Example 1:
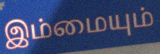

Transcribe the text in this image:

இம்மையும்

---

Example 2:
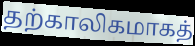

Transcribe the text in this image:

தற்காலிகமாகத்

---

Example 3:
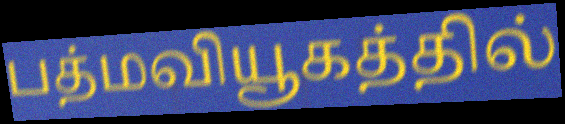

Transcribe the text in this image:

பத்மவியூகத்தில்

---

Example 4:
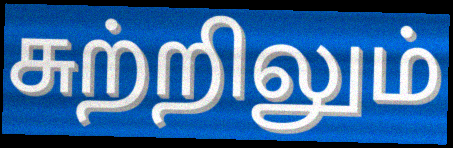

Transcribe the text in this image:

சுற்றிலும்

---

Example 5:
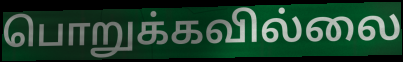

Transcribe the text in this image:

பொறுக்கவில்லை